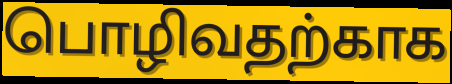
பொழிவதற்காக